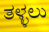
ತಳ್ಳಲು